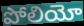
పోలియో